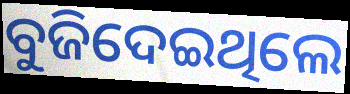
ବୁଜିଦେଇଥିଲେ